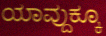
ಯಾವ್ದುಕ್ಕೂ